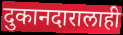
दुकानदारालाही